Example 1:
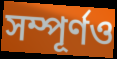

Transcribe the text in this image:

সম্পূর্ণও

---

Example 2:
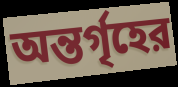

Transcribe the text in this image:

অন্তর্গৃহের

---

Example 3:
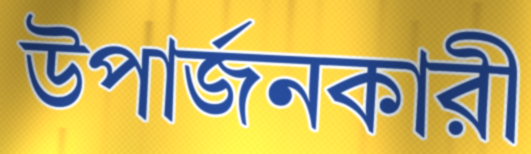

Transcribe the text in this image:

উপার্জনকারী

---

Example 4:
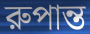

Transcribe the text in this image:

রুপান্ত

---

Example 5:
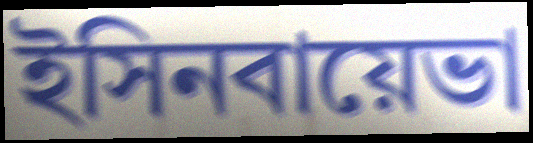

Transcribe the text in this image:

ইসিনবায়েভা